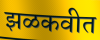
झळकवीत